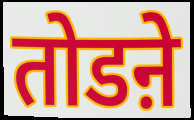
तोडऩे